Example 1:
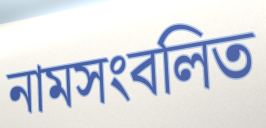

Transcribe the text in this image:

নামসংবলিত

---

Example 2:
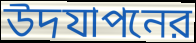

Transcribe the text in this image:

উদযাপনের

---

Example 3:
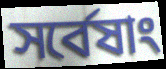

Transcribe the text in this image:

সর্বেষাং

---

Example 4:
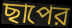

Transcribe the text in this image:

ছাপের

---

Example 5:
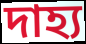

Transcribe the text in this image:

দাহ্য